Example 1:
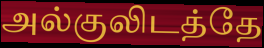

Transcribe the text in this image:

அல்குலிடத்தே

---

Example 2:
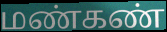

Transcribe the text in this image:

மண்கண்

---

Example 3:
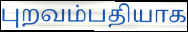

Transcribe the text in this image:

புறவம்பதியாக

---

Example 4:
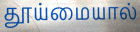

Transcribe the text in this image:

தூய்மையால்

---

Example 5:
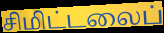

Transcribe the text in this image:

சிமிட்டலைப்